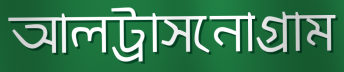
আলট্রাসনোগ্রাম